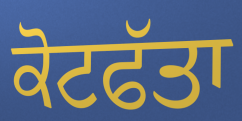
ਕੋਟਫੱਤਾ